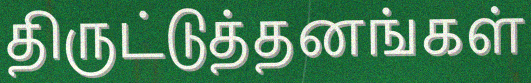
திருட்டுத்தனங்கள்